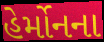
હેર્મોનના